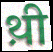
थ़ी